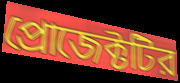
প্রোজেক্টটির